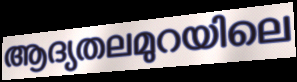
ആദ്യതലമുറയിലെ